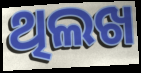
ଥିଲଖ